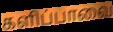
களிப்பாவை